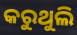
କରୁଥୁଲି